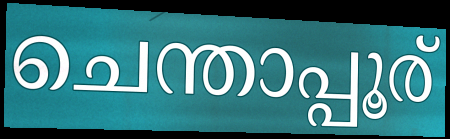
ചെന്താപ്പൂര്